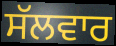
ਸੱਲਵਾਰ